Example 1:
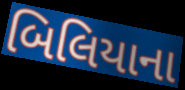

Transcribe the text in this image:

બિલિયાના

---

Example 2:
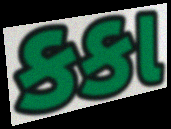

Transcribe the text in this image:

કકા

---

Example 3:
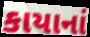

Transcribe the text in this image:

કાયાનાં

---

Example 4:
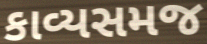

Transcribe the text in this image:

કાવ્યસમજ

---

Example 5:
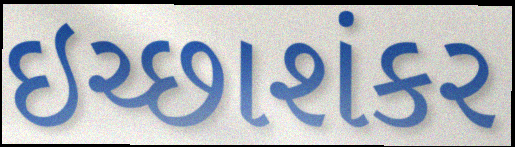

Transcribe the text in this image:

ઇચ્છાશંકર